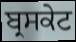
ਬ੍ਰਸਕੇਟ